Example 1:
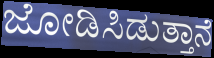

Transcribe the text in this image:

ಜೋಡಿಸಿಡುತ್ತಾನೆ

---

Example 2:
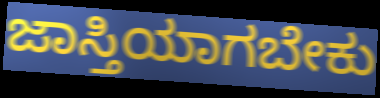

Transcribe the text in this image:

ಜಾಸ್ತಿಯಾಗಬೇಕು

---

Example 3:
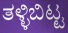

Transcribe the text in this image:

ತಳ್ಳಿಬಿಟ್ಟ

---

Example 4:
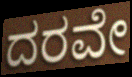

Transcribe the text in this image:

ದರವೇ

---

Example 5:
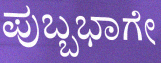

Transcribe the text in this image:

ಪುಬ್ಬಭಾಗೇ